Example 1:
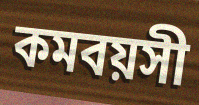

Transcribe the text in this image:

কমবয়সী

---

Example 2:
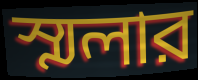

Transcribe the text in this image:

স্মলার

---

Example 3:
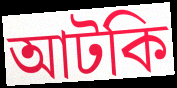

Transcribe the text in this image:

আটকি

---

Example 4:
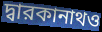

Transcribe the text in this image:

দ্বারকানাথও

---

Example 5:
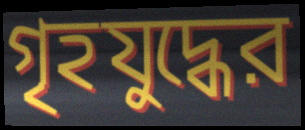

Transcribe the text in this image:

গৃহযুদ্ধের